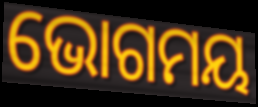
ଭୋଗମୟ